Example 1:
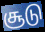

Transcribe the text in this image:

சூடு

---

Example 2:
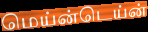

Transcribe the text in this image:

மெய்ன்டெய்ன்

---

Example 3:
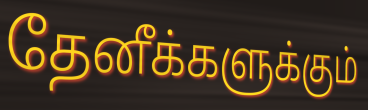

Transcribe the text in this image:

தேனீக்களுக்கும்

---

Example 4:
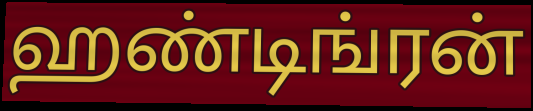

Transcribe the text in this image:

ஹண்டிங்ரன்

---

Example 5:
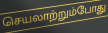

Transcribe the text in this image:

செயலாற்றும்போது